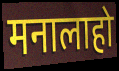
मनालाहो